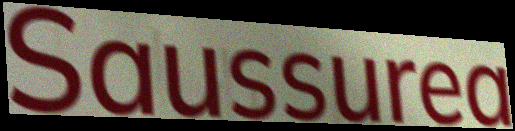
Saussurea